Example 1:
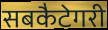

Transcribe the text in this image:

सबकैटेगरी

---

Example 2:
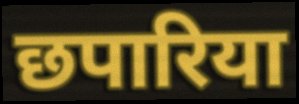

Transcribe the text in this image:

छपारिया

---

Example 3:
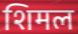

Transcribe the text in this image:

शिमल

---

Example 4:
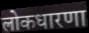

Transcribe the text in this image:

लोकधारणा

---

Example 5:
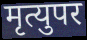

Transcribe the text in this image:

मृत्युपर